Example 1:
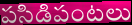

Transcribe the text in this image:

పసిడిపంటలు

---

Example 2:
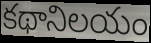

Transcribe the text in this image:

కథానిలయం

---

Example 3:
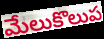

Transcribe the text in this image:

మేలుకొలుప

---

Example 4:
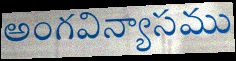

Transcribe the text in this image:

అంగవిన్యాసము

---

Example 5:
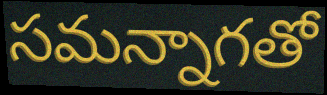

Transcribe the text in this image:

సమన్నాగతో